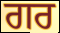
ਗਰ